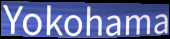
Yokohama